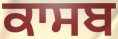
ਕਾਸਬ